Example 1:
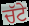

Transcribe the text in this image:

ਚੱਟੇ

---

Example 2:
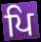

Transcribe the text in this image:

ਪਿ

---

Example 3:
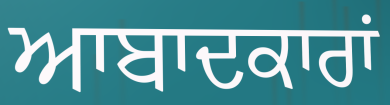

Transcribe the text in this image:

ਆਬਾਦਕਾਰਾਂ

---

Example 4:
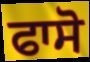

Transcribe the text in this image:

ਫਾਸੋ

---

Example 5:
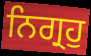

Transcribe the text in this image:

ਨਿਗ੍ਰਹੁ